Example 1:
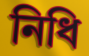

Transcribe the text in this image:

নিধি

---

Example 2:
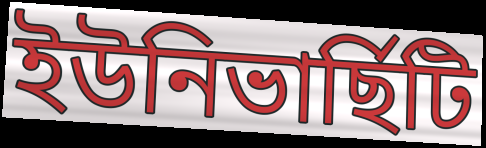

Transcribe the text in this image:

ইউনিভাৰ্ছিটি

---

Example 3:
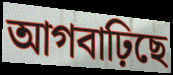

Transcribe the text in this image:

আগবাঢ়িছে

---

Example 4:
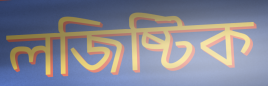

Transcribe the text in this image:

লজিষ্টিক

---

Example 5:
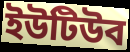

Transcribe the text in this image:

ইউটিউব